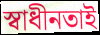
স্বাধীনতাই